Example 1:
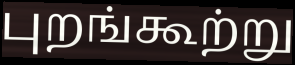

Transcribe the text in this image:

புறங்கூற்று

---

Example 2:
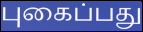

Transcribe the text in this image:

புகைப்பது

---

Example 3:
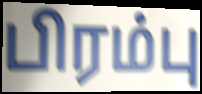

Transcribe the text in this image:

பிரம்பு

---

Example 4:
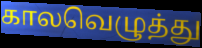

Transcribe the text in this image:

காலவெழுத்து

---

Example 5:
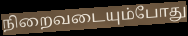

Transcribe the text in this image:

நிறைவடையும்போது